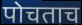
पोचताच